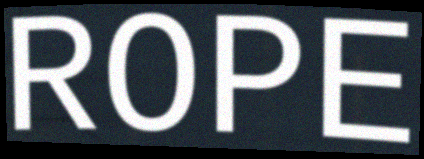
ROPE